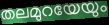
തലമുറയേയും